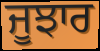
ਜੂਝਾਰ